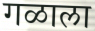
गळाला